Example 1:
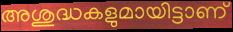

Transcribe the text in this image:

അശുദ്ധകളുമായിട്ടാണ്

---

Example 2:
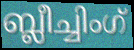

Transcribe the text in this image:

ബ്ലീച്ചിംഗ്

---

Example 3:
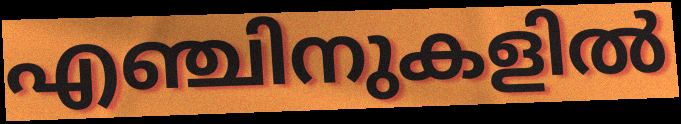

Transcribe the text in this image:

എഞ്ചിനുകളിൽ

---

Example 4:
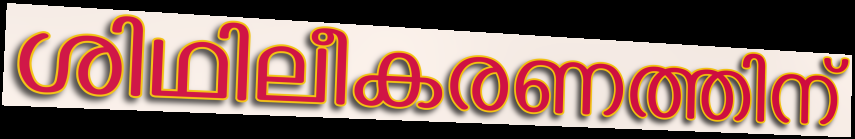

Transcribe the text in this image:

ശിഥിലീകരണത്തിന്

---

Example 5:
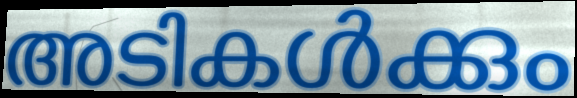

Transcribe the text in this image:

അടികൾക്കും